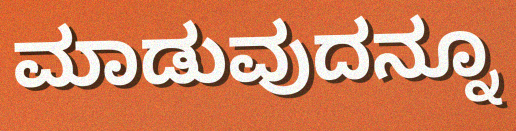
ಮಾಡುವುದನ್ನೂ